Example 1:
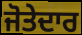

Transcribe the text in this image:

ਜੋਤੇਦਾਰ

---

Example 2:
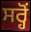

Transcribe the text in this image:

ਸਰ੍ਹੋਂ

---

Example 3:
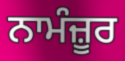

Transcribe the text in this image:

ਨਾਮੰਜ਼ੂਰ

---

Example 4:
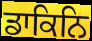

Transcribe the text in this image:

ਡਾਕਿਨਿ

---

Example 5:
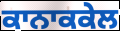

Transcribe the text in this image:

ਕਾਨਾਕਕੇਲ